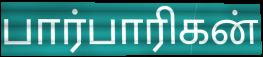
பார்பாரிகன்